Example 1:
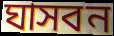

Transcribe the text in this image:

ঘাসবন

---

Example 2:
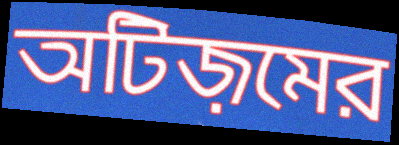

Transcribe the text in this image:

অটিজ়মের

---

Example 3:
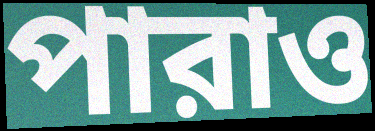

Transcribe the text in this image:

পারাও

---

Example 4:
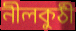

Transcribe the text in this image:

নীলকুঠী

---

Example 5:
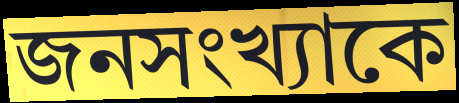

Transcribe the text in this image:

জনসংখ্যাকে